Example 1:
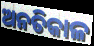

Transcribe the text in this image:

ଅନତିକାଳ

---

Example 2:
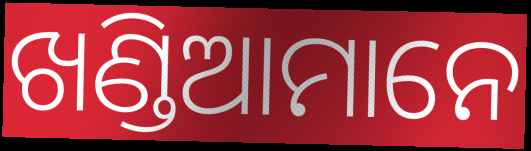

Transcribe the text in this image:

ଖଣ୍ଡିଆମାନେ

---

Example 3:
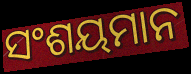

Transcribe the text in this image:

ସଂଶୟମାନ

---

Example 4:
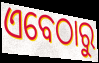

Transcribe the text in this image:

ଏବେଠାରୁ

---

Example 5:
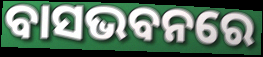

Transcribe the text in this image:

ବାସଭବନରେ